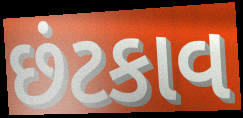
છંટકાવ